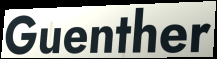
Guenther